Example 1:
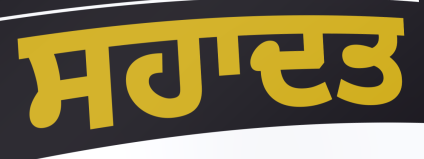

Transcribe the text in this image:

ਸਹਾਦਤ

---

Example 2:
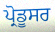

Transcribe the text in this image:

ਪ੍ਰੋਡੂਸਰ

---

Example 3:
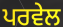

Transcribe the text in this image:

ਪਰਵੇਲ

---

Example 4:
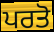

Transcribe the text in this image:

ਪਰਤੋ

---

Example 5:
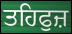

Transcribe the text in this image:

ਤਹਿਫੁਜ਼